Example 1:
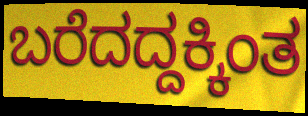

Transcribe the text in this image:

ಬರೆದದ್ದಕ್ಕಿಂತ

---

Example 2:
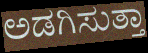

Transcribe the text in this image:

ಅಡಗಿಸುತ್ತಾ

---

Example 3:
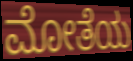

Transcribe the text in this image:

ಮೋತೆಯ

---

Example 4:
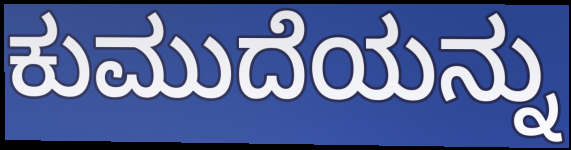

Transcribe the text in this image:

ಕುಮುದೆಯನ್ನು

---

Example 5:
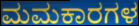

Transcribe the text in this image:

ಮಮಕಾರಗಳ